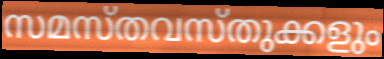
സമസ്തവസ്തുക്കളും